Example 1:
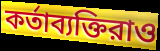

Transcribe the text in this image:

কর্তাব্যক্তিরাও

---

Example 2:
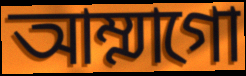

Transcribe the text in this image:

আম্মাগো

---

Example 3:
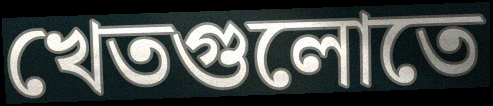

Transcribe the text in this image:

খেতগুলোতে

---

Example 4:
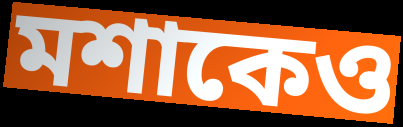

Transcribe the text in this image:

মশাকেও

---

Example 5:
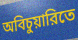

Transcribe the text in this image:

অবিচুয়ারিতে